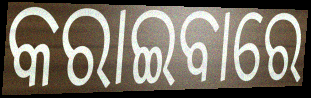
କରାଇବାରେ